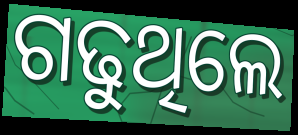
ଗଢୁଥିଲେ